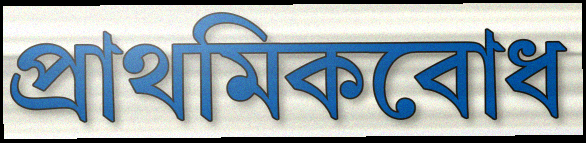
প্রাথমিকবোধ